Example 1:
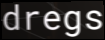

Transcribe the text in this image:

dregs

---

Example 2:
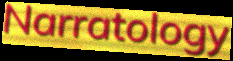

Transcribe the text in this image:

Narratology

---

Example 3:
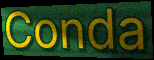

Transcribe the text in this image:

Conda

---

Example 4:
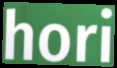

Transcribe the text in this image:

hori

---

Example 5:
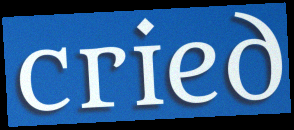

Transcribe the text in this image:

cried